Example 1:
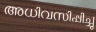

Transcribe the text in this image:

അധിവസിപ്പിച്ചു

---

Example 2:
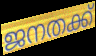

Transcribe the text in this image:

ജനതക്ക്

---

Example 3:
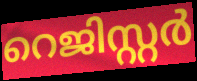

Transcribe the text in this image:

റെജിസ്റ്റർ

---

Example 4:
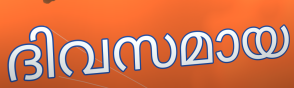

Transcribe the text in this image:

ദിവസമായ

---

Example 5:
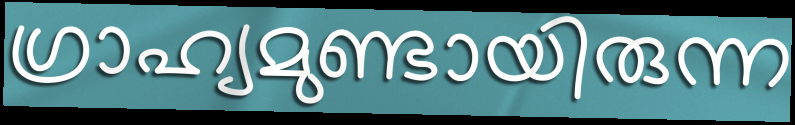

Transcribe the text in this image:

ഗ്രാഹ്യമുണ്ടായിരുന്ന